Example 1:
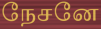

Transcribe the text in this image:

நேசனே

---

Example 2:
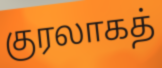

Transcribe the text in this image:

குரலாகத்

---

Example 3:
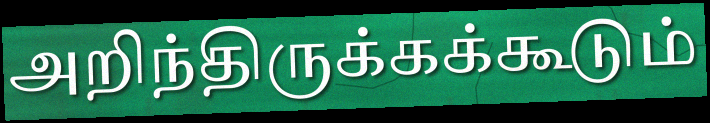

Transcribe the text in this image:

அறிந்திருக்கக்கூடும்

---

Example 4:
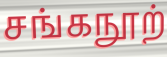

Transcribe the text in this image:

சங்கநூற்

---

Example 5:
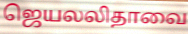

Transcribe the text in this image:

ஜெயலலிதாவை